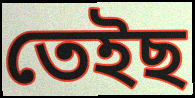
তেইছ